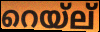
റെയ്ല്